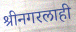
श्रीनगरलाही